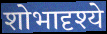
शोभादृश्ये